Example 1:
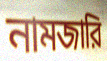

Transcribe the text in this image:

নামজারি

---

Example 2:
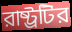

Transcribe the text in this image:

রাষ্ট্রটির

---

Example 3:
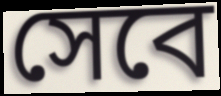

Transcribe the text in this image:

সেবে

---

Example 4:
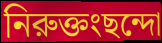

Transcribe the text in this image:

নিরুক্তংছন্দো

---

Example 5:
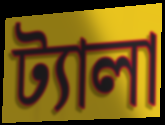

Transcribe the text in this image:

ট্যালা